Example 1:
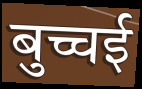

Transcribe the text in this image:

बुच्चई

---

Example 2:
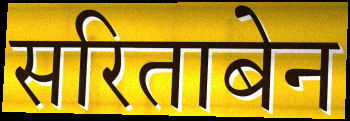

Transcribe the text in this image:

सरिताबेन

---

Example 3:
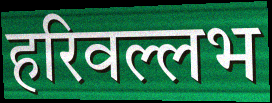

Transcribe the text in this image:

हरिवल्लभ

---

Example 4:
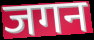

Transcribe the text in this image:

जगन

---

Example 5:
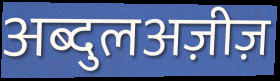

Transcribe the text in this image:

अब्दुलअज़ीज़